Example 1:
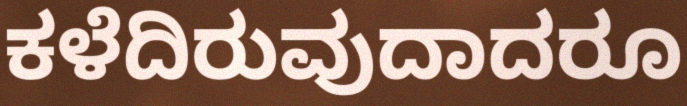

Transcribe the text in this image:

ಕಳೆದಿರುವುದಾದರೂ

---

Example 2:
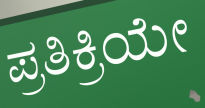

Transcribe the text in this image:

ಪ್ರತಿಕ್ರಿಯೇ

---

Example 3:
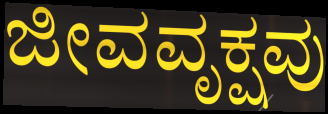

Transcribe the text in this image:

ಜೀವವೃಕ್ಷವು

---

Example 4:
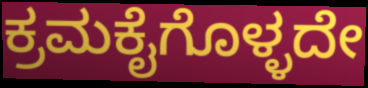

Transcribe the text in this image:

ಕ್ರಮಕೈಗೊಳ್ಳದೇ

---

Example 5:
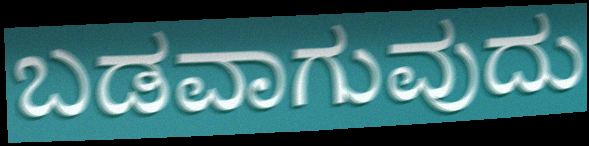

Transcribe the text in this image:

ಬಡವಾಗುವುದು